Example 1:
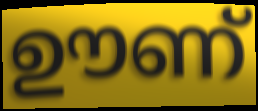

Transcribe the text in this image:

ഊണ്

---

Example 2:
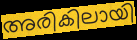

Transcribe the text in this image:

അരികിലായി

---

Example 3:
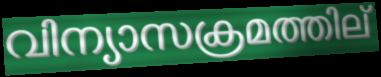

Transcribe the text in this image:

വിന്യാസക്രമത്തില്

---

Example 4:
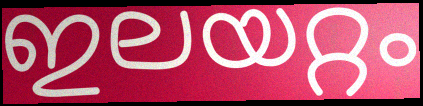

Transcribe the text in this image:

ഇലയറ്റം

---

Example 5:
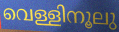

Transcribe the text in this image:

വെള്ളിനൂലു